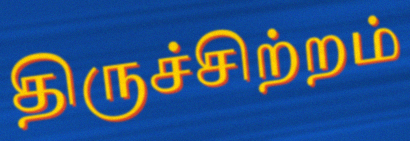
திருச்சிற்றம்